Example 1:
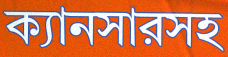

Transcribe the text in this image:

ক্যানসারসহ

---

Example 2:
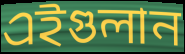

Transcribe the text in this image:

এইগুলান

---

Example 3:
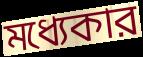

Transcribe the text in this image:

মধ্যেকার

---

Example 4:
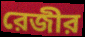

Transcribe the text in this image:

রেজীর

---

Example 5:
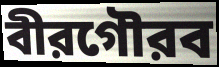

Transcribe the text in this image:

বীরগৌরব